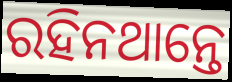
ରହିନଥାନ୍ତେ